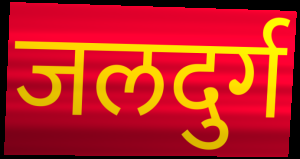
जलदुर्ग